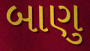
બાણુ